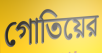
গোতিয়ের